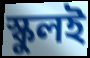
স্কুলই